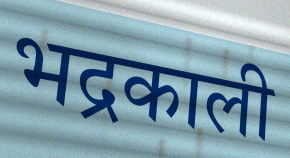
भद्रकाली